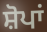
ਸ਼ੋਪਾਂ